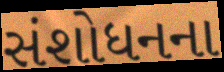
સંશોધનના